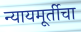
न्यायमूर्तीचा